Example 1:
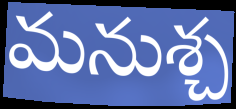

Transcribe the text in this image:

మనుశ్చ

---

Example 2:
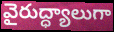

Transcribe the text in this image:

వైరుద్ధ్యాలుగా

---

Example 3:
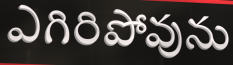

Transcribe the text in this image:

ఎగిరిపోవును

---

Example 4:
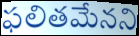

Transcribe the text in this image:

ఫలితమేనని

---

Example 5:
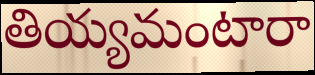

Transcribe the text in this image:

తియ్యమంటారా